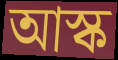
আস্ক